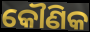
କୌଣିକ